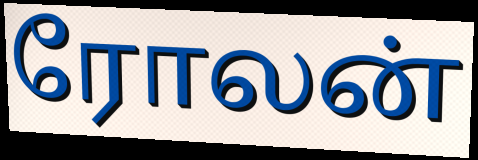
ரோலன்